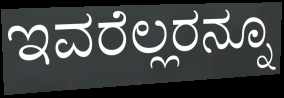
ಇವರೆಲ್ಲರನ್ನೂ